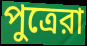
পুত্রেরা